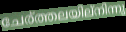
ചേര്ത്തലയില്നിന്നു